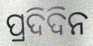
ପ୍ରଦିଦିନ